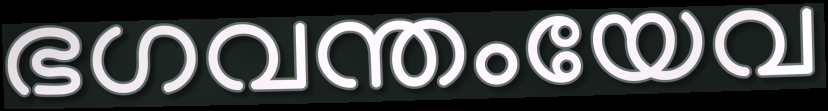
ഭഗവന്തംയേവ